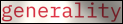
generality